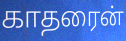
காதரைன்